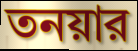
তনয়ার